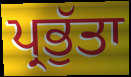
ਪ੍ਰਭੁੱਤਾ